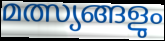
മത്സ്യങ്ങളും